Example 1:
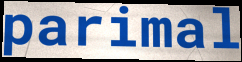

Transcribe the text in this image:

parimal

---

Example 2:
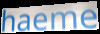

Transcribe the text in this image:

haeme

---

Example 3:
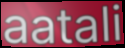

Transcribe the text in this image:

aatali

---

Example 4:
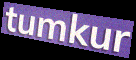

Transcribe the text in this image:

tumkur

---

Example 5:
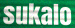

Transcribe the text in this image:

sukalo